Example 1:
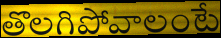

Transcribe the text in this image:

తొలగిపోవాలంటే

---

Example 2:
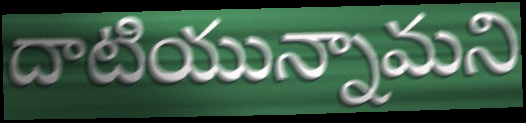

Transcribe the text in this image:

దాటియున్నామని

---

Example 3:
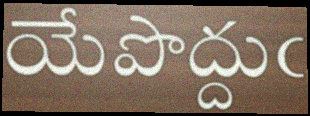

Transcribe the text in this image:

యేపొద్దుఁ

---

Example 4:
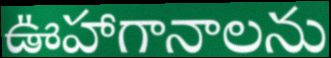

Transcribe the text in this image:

ఊహాగానాలను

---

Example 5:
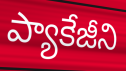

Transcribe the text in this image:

ప్యాకేజీని